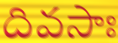
దివసాః